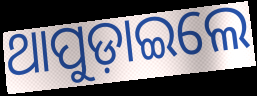
ଥାପୁଡ଼ାଇଲେ